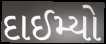
દાઈમ્યો